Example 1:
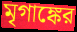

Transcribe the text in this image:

মৃগাঙ্কের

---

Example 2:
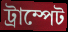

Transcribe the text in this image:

ট্রাম্পেট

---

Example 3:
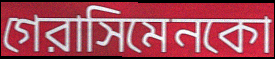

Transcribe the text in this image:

গেরাসিমেনকো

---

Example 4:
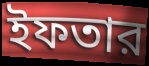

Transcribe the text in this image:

ইফতার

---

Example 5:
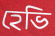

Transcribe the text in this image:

হেভি